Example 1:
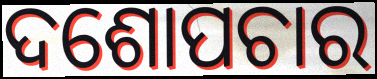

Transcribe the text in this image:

ଦଶୋପଚାର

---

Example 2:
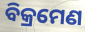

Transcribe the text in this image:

ବିକ୍ରମେଣ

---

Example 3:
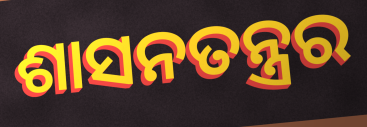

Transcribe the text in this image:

ଶାସନତନ୍ତ୍ରର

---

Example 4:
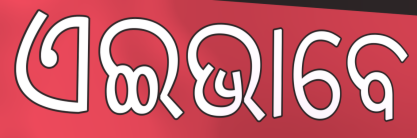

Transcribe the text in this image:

ଏଇଭାବେ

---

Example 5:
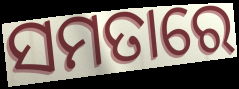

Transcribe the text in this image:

ସମତାରେ